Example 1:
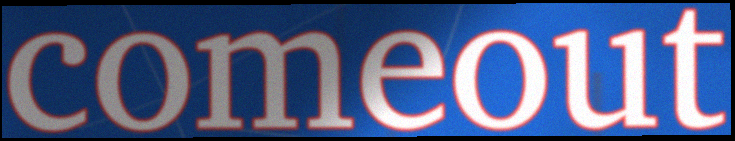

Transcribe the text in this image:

comeout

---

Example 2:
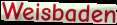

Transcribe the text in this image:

Weisbaden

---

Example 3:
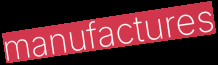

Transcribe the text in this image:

manufactures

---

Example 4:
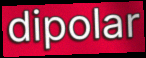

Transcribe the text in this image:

dipolar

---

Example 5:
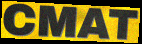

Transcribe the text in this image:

CMAT